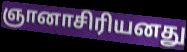
ஞானாசிரியனது